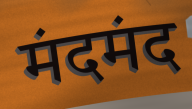
मंदमंद